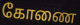
கோணை